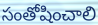
సంతోషించాలి